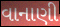
વાનાણી